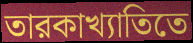
তারকাখ্যাতিতে